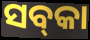
ସବ୍‌କା